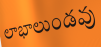
లాభాలుండవు